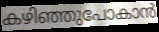
കഴിഞ്ഞുപോകാൻ